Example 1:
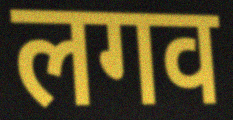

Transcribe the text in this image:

लगव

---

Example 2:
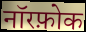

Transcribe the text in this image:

नॉरफ़ोक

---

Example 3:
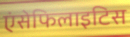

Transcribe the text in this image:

एंसेफिलाइटिस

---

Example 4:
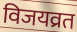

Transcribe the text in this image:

विजयव्रत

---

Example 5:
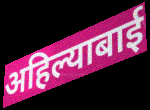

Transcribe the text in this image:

अहिल्याबाई